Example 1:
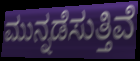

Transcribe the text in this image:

ಮುನ್ನಡೆಸುತ್ತಿವೆ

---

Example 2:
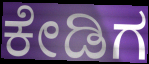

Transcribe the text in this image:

ಕೇಡಿಗ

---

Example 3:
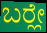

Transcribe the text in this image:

ಬರ್‍ಲೇ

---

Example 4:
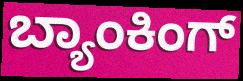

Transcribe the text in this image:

ಬ್ಯಾಂಕಿಂಗ್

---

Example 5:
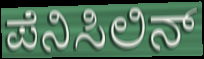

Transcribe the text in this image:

ಪೆನಿಸಿಲಿನ್